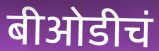
बीओडीचं